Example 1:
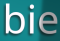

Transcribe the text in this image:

bie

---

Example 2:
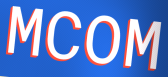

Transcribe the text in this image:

MCOM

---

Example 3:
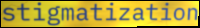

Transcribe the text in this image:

stigmatization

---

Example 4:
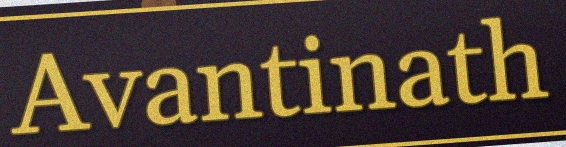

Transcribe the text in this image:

Avantinath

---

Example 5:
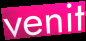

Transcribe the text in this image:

venit